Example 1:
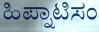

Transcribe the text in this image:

ಹಿಪ್ನಾಟಿಸಂ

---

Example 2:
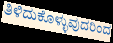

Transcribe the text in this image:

ತಿಳಿದುಕೊಳ್ಳುವುದರಿಂದ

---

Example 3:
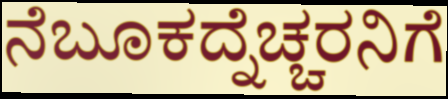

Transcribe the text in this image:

ನೆಬೂಕದ್ನೆಚ್ಚರನಿಗೆ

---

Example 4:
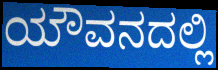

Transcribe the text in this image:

ಯೌವನದಲ್ಲಿ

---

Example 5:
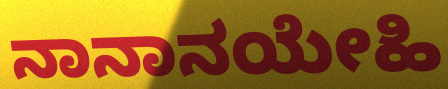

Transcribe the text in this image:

ನಾನಾನಯೇಹಿ